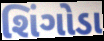
શિંગોડા